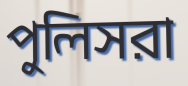
পুলিসরা